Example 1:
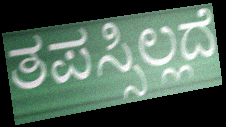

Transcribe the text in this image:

ತಪಸ್ಸಿಲ್ಲದೆ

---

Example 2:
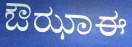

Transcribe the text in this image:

ಔಝಾಈ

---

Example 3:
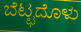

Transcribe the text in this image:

ಬೆಟ್ಟದೊಳು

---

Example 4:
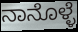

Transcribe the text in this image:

ನಾನೊಳ್ಳೆ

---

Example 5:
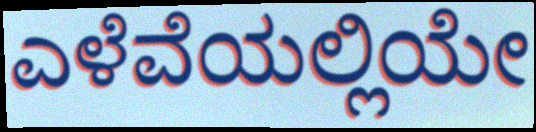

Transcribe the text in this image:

ಎಳೆವೆಯಲ್ಲಿಯೇ